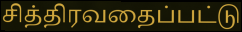
சித்திரவதைப்பட்டு